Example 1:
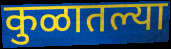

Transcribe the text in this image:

कुळातल्या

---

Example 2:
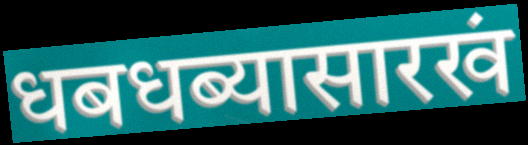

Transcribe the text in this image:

धबधब्यासारखं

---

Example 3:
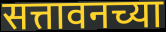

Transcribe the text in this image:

सत्तावनच्या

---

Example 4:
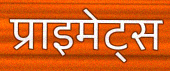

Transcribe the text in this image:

प्राइमेट्स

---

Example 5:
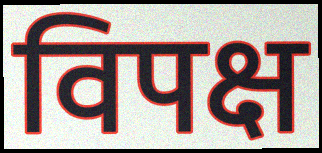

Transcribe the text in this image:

विपक्ष